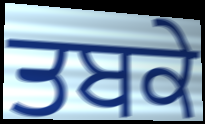
ਤਬਕੇ